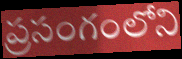
ప్రసంగంలోని